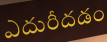
ఎదురీదడం